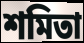
শমিতা